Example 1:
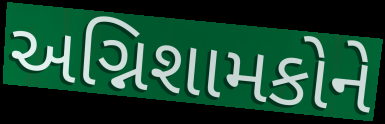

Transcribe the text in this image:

અગ્નિશામકોને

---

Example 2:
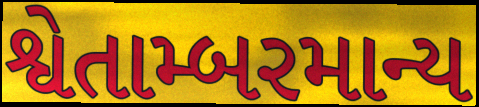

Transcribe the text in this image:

શ્વેતામ્બરમાન્ય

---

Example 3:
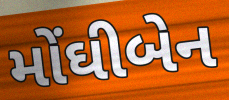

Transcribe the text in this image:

મોંઘીબેન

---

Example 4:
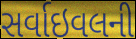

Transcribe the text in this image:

સર્વાઇવલની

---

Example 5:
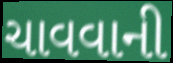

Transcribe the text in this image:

ચાવવાની